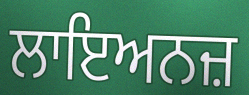
ਲਾਇਅਨਜ਼